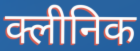
क्लीनिक